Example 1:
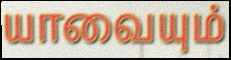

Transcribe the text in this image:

யாவையும்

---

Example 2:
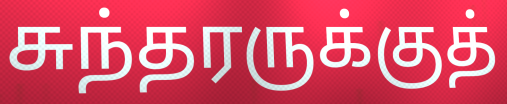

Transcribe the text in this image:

சுந்தரருக்குத்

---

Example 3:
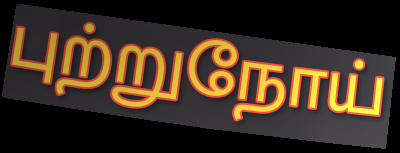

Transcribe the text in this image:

புற்றுநோய்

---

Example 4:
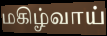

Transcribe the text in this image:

மகிழ்வாய்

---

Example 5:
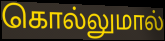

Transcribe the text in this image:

கொல்லுமால்